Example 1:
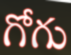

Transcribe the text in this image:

గోగు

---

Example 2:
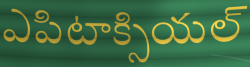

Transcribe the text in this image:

ఎపిటాక్సియల్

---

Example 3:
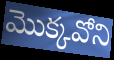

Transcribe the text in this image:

మొక్కవోని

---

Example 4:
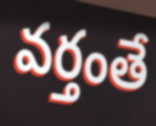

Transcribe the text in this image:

వర్తంతే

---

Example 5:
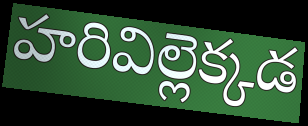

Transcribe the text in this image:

హరివిల్లెక్కడ